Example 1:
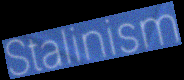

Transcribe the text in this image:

Stalinism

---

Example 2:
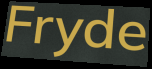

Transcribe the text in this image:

Fryde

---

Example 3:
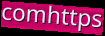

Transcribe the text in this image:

comhttps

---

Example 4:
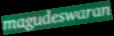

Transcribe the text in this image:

magudeswaran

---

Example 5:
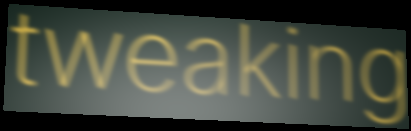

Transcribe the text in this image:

tweaking